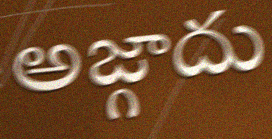
అజ్గాదు